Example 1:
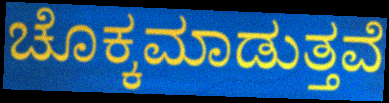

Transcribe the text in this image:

ಚೊಕ್ಕಮಾಡುತ್ತವೆ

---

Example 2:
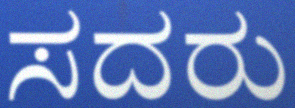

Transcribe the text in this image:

ಸದರು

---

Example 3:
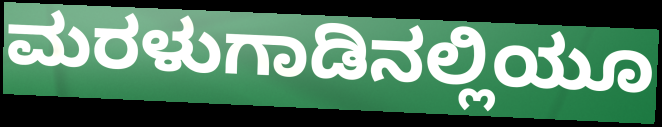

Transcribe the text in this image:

ಮರಳುಗಾಡಿನಲ್ಲಿಯೂ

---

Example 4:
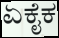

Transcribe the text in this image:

ಏಕೈಕ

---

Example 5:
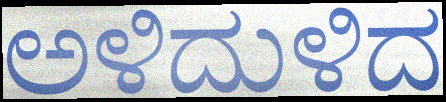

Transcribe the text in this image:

ಅಳಿದುಳಿದ